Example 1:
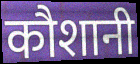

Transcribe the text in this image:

कौशानी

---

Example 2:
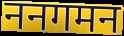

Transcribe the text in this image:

ननगमन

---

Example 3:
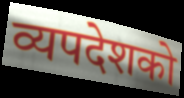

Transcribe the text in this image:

व्यपदेशको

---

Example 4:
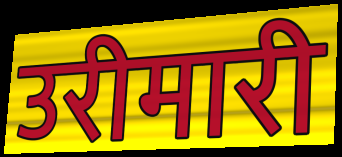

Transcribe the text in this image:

उरीमारी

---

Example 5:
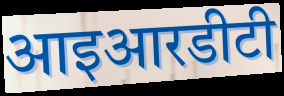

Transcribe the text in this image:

आइआरडीटी